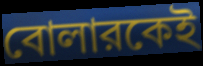
বোলারকেই